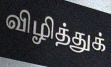
விழித்துக்